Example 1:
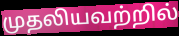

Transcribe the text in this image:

முதலியவற்றில்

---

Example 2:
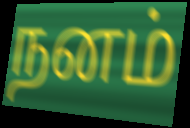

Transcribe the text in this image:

நனம்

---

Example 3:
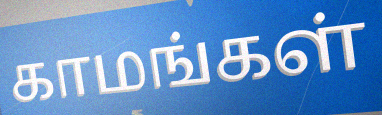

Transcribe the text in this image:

காமங்கள்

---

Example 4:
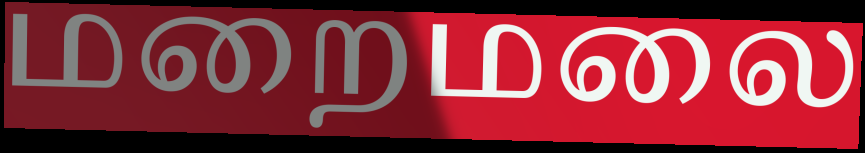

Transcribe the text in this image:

மறைமலை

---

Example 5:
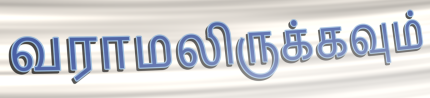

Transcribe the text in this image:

வராமலிருக்கவும்